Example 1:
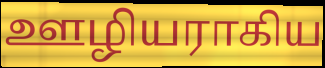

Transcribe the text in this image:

ஊழியராகிய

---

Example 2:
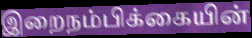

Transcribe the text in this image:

இறைநம்பிக்கையின்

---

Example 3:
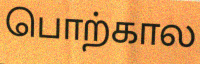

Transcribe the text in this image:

பொற்கால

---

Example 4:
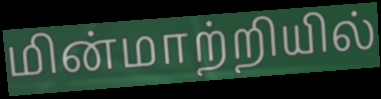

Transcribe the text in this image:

மின்மாற்றியில்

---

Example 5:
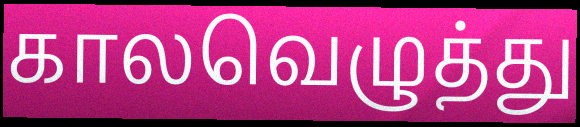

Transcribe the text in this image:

காலவெழுத்து